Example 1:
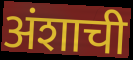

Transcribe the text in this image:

अंशाची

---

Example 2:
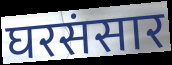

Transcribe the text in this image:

घरसंसार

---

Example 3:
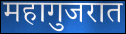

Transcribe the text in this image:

महागुजरात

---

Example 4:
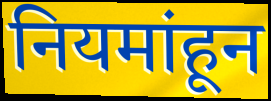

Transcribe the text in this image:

नियमांहून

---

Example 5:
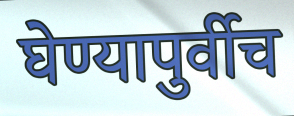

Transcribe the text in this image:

घेण्यापुर्वीच